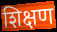
शिक्षण